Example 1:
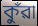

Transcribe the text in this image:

কুঁৱা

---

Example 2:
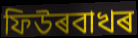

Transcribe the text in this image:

ফিউৰবাখৰ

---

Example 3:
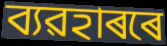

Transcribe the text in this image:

ব্যৱহাৰৰে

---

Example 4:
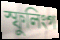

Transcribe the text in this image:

স্ফুলিংগ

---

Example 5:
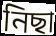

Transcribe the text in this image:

নিছা